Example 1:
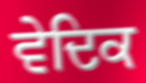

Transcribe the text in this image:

ਵੇਦਿਕ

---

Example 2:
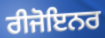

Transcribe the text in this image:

ਰੀਜੋਇਨਰ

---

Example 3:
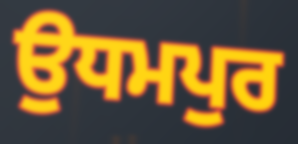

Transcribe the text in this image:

ਉਧਮਪੁਰ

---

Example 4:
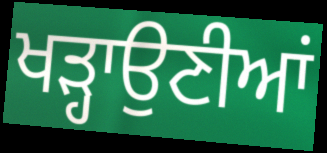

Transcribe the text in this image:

ਖੜ੍ਹਾਉਣੀਆਂ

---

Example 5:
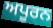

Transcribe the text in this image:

ਅਪੂਰਨ